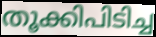
തൂക്കിപിടിച്ച